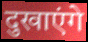
दुखाएंगे